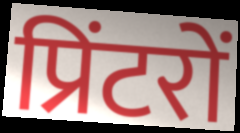
प्रिंटरों